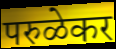
परुळेकर